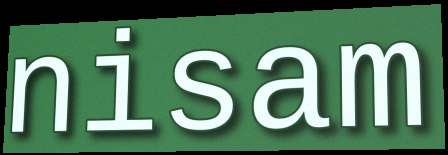
nisam